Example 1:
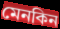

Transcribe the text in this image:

মেনকিন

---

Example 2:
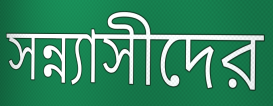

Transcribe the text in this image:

সন্ন্যাসীদের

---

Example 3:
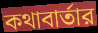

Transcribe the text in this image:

কথাবার্তার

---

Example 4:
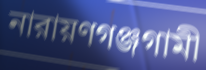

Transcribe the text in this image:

নারায়ণগঞ্জগামী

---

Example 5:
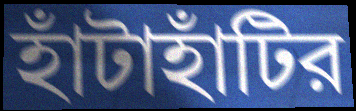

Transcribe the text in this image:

হাঁটাহাঁটির